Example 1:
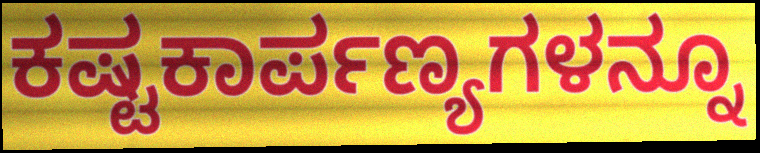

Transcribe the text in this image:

ಕಷ್ಟಕಾರ್ಪಣ್ಯಗಳನ್ನೂ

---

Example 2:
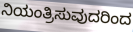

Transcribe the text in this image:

ನಿಯಂತ್ರಿಸುವುದರಿಂದ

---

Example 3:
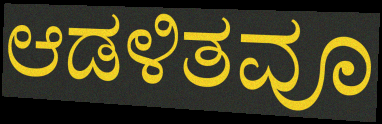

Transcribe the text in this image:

ಆಡಳಿತವೂ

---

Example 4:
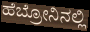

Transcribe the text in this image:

ಹೆಬ್ರೋನಿನಲ್ಲಿ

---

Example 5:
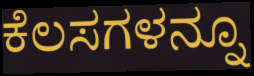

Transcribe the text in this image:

ಕೆಲಸಗಳನ್ನೂ